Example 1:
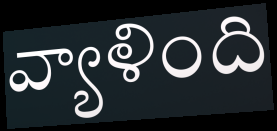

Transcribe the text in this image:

వ్యాళింది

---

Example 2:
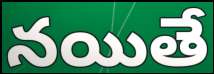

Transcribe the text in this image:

నయితే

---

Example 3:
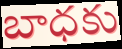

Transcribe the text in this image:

బాధకు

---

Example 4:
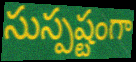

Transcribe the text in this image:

సుస్పష్టంగా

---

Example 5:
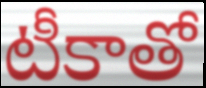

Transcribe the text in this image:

టీకాతో